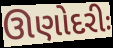
ઊણોદરીઃ